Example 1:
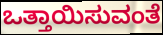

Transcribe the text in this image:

ಒತ್ತಾಯಿಸುವಂತೆ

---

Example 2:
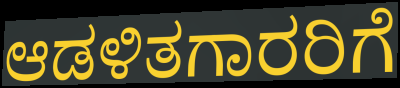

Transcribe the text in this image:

ಆಡಳಿತಗಾರರಿಗೆ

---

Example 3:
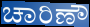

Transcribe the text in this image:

ಚಾರಿಣೌ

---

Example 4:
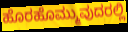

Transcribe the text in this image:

ಹೊರಹೊಮ್ಮುವುದರಲ್ಲಿ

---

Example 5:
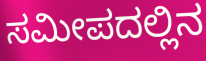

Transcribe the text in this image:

ಸಮೀಪದಲ್ಲಿನ